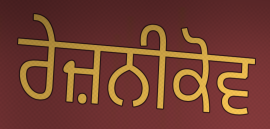
ਰੇਜ਼ਨੀਕੋਵ